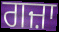
ਗਜ਼ਾ